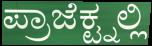
ಪ್ರಾಜೆಕ್ಟ್ನಲ್ಲಿ